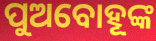
ପୁଅବୋହୂଙ୍କ